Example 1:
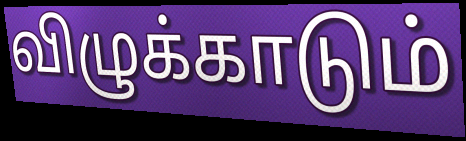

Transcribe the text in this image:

விழுக்காடும்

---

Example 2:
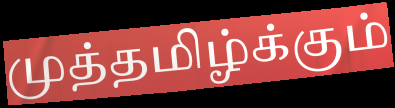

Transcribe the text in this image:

முத்தமிழ்க்கும்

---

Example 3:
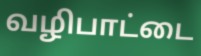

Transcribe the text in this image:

வழிபாட்டை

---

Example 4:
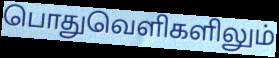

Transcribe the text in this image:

பொதுவெளிகளிலும்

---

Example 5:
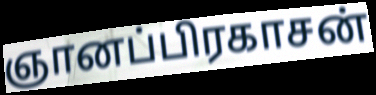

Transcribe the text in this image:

ஞானப்பிரகாசன்